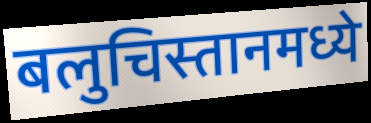
बलुचिस्तानमध्ये